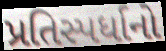
પ્રતિસ્પર્ધાનો